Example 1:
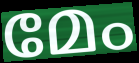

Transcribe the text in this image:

മേം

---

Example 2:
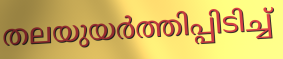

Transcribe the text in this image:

തലയുയർത്തിപ്പിടിച്ച്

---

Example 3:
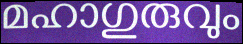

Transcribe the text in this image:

മഹാഗുരുവും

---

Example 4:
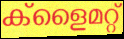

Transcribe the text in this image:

ക്ളൈമറ്റ്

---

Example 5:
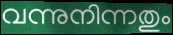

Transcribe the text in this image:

വന്നുനിന്നതും